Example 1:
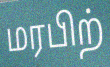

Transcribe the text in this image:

மரபிற்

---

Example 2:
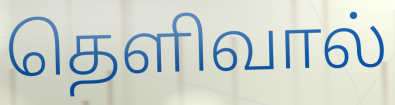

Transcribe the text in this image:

தெளிவால்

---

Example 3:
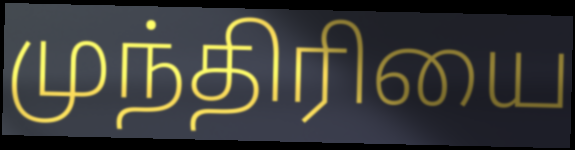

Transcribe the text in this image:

முந்திரியை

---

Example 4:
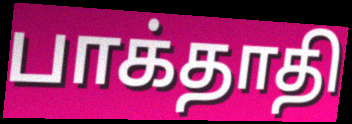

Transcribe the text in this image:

பாக்தாதி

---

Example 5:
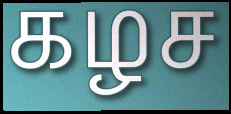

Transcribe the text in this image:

கழச